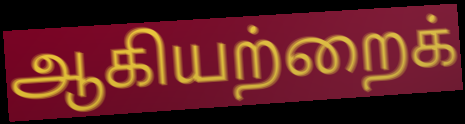
ஆகியற்றைக்